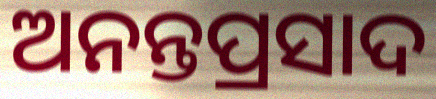
ଅନନ୍ତପ୍ରସାଦ